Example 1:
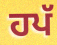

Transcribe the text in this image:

ਹਪੱ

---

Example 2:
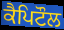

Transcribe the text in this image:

ਕੈਪਿਟੌਲ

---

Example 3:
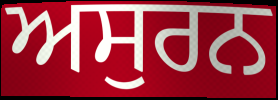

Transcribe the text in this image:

ਅਸੁਰਨ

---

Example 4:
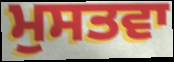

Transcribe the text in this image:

ਮੁਸਤਵਾ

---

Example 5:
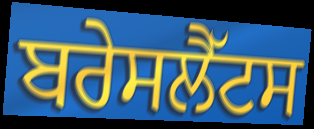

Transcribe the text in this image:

ਬਰੇਸਲੈੱਟਸ